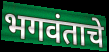
भगवंताचे